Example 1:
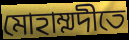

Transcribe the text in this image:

মোহাম্মদীতে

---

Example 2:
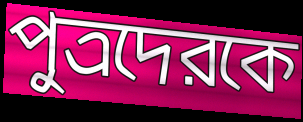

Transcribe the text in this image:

পুত্রদেরকে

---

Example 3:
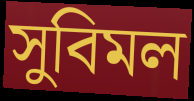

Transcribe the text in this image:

সুবিমল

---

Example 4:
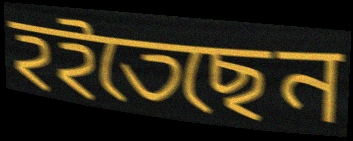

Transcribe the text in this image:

হইতেছেন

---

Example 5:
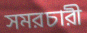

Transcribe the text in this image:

সমরচারী